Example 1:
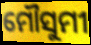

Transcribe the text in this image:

ମୌସୁମୀ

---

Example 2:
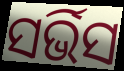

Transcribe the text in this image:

ସର୍ଭିସ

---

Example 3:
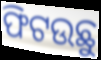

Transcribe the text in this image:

ଫିଟଉଛୁ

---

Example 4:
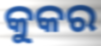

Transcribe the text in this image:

କୁକର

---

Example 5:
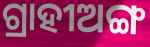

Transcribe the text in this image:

ଗ୍ରାହୀଅଙ୍ଗ